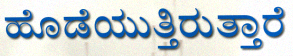
ಹೊಡೆಯುತ್ತಿರುತ್ತಾರೆ